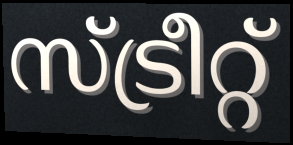
സ്ട്രീറ്റ്